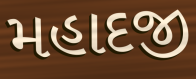
મહાદજી